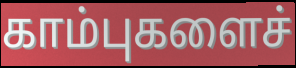
காம்புகளைச்